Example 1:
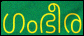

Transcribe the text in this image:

ഗംഭീര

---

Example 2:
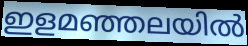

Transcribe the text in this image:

ഇളമഞ്ഞലയിൽ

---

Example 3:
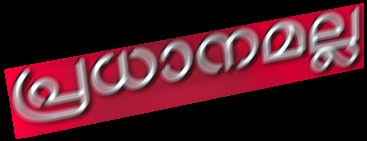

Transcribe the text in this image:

പ്രധാനമല്ല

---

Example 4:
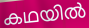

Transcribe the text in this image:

കഥയിൽ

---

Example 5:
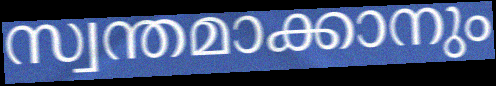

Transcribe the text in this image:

സ്വന്തമാക്കാനും